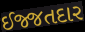
ઈજ્જતદાર